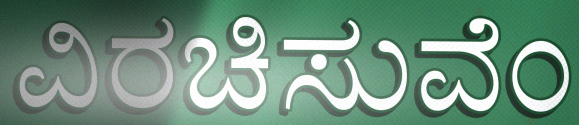
ವಿರಚಿಸುವೆಂ